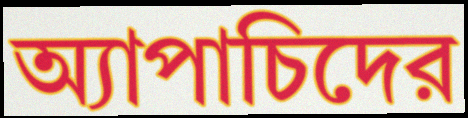
অ্যাপাচিদের